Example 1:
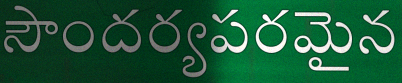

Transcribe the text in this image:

సౌందర్యపరమైన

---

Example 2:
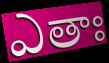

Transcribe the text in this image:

ఎతాః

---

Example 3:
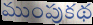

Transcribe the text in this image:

ముంపుకథ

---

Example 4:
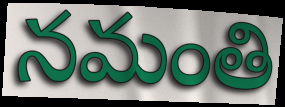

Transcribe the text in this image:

నమంతి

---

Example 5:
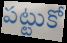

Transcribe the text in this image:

పట్టుకో